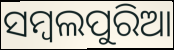
ସମ୍ୱଲପୁରିଆ